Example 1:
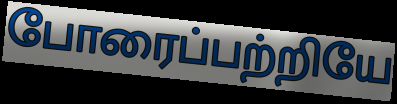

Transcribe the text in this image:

போரைப்பற்றியே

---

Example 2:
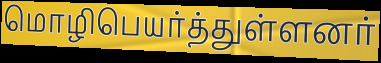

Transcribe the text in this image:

மொழிபெயர்த்துள்ளனர்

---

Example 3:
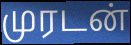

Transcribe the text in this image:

முரடன்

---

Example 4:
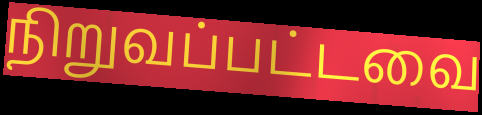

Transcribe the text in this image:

நிறுவப்பட்டவை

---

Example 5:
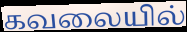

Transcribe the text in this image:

கவலையில்